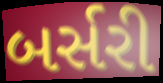
બર્સરી